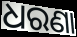
ଧରଣା